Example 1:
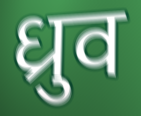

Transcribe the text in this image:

ध्रुव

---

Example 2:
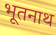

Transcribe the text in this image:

भूतनाथ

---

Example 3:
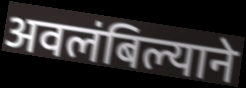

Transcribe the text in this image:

अवलंबिल्याने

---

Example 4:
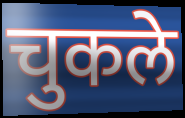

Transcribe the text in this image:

चुकले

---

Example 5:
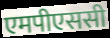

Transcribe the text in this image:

एमपीएससी